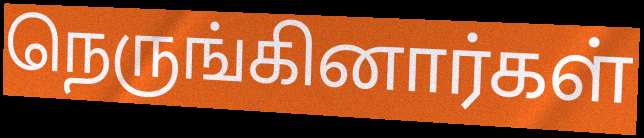
நெருங்கினார்கள்